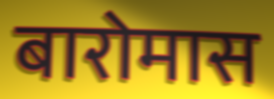
बारोमास